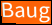
Baug